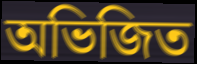
অভিজিত